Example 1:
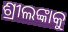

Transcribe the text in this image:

ଶ୍ରୀଲଙ୍କାକୁ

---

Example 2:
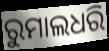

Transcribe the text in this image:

ରୁମାଲଧରି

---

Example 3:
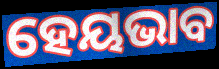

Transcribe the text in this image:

ହେୟଭାବ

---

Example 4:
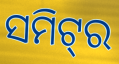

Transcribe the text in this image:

ସମିଟ୍‌ର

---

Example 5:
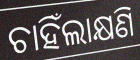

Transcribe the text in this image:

ଚାହିଁଲାକ୍ଷଣି